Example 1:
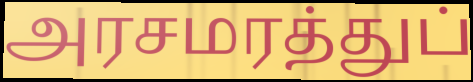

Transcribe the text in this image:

அரசமரத்துப்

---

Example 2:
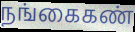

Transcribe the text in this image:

நங்கைகண்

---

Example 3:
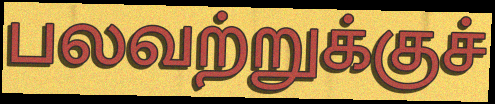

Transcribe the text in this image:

பலவற்றுக்குச்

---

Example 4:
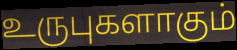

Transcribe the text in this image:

உருபுகளாகும்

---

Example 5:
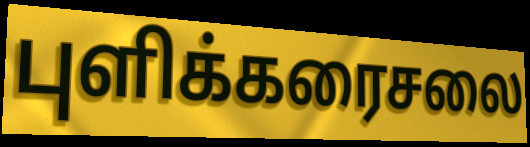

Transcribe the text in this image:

புளிக்கரைசலை